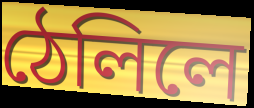
ঠেলিলে